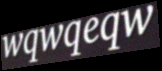
wqwqeqw